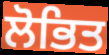
ਲੋਭਿਤ